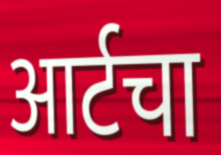
आर्टचा